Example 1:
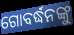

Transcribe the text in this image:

ଗୋବର୍ଦ୍ଧନଙ୍କୁ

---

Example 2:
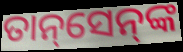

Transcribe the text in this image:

ତାନ୍‌ସେନ୍‌ଙ୍କ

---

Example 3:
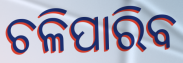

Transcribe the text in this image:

ଚଳିପାରିବ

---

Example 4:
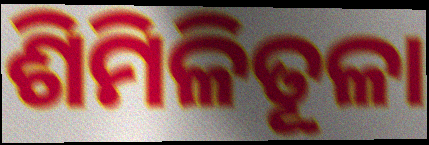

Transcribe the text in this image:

ଶିମିଳିତୂଳା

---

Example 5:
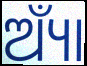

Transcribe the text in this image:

ଅ୍ୟାଁ